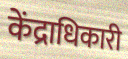
केंद्राधिकारी